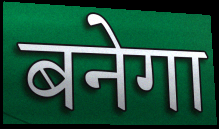
बनेगा